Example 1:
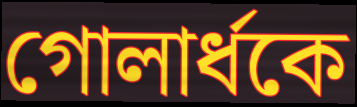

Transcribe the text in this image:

গোলার্ধকে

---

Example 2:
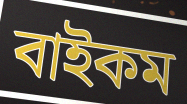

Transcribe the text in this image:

বাইকম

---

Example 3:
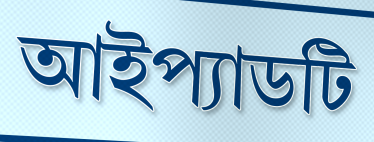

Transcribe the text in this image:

আইপ্যাডটি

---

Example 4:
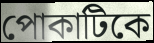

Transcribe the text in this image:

পোকাটিকে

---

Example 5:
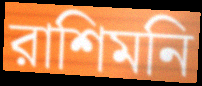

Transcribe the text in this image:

রাশিমনি